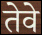
तेवे